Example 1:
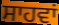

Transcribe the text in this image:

ਸਾਹਵਾਂ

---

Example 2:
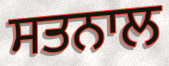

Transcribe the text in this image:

ਸਤਨਾਲ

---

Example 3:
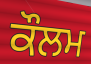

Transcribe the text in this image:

ਕੌਲਮ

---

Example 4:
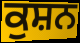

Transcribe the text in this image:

ਕੁਸ਼ਨ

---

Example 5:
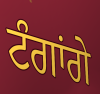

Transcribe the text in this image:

ਟੰਗਾਂਗੇ